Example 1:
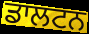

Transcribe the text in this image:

ਡਾਲਟਨ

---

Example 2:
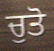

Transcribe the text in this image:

ਚੁਤੋ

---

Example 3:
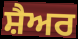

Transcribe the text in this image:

ਸ਼ੈਅਰ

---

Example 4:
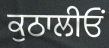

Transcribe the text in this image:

ਕੁਠਾਲੀਓਂ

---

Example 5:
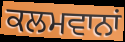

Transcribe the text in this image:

ਕਲਮਵਾਨਾਂ